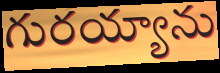
గురయ్యాను